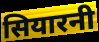
सियारनी